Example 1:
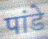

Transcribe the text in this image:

पांडे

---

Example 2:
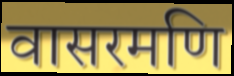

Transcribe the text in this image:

वासरमणि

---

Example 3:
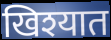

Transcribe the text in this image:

खिश्यात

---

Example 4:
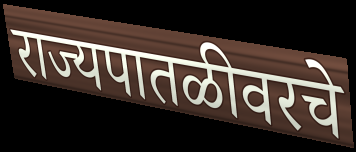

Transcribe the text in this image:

राज्यपातळीवरचे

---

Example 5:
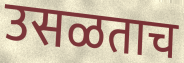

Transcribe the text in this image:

उसळताच